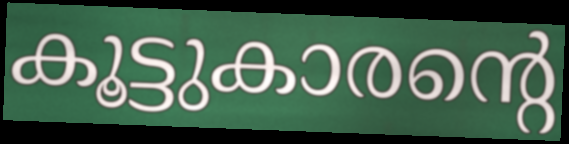
കൂട്ടുകാരന്റെ